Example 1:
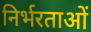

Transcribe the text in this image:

निर्भरताओं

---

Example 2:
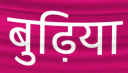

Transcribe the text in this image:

बुढ़िया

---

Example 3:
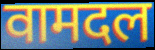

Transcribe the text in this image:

वामदल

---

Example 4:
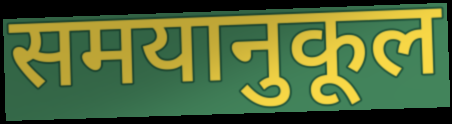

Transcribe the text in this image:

समयानुकूल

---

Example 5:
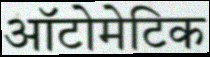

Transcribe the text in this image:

ऑटोमेटिक